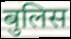
बुलिस